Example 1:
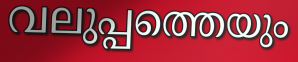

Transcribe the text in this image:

വലുപ്പത്തെയും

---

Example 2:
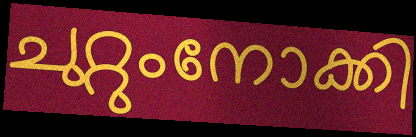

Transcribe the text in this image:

ചുറ്റുംനോക്കി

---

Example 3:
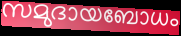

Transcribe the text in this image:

സമുദായബോധം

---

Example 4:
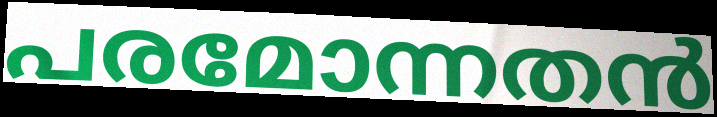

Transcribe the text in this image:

പരമോന്നതൻ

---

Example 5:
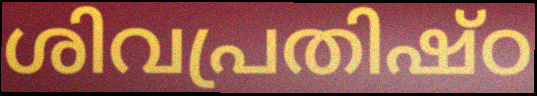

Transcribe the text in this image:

ശിവപ്രതിഷ്ഠ